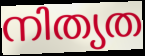
നിത്യത